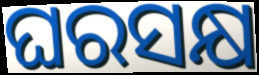
ଘରସକ୍ଷ